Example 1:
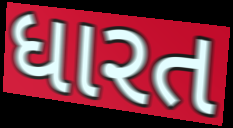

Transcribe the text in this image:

ધારત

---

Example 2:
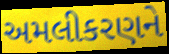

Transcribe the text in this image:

અમલીકરણને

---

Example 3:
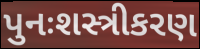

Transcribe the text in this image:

પુનઃશસ્ત્રીકરણ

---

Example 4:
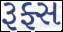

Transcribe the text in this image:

રૂફ્સ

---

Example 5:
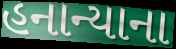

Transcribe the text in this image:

હનાન્યાના